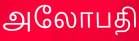
அலோபதி